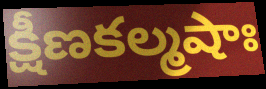
క్షీణకల్మషాః